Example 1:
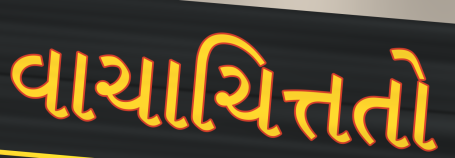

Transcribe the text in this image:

વાચાચિત્તતો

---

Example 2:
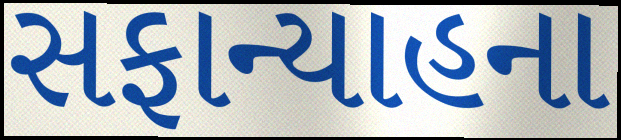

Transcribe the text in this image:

સફાન્યાહના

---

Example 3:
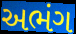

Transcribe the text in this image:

અભંગ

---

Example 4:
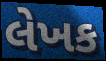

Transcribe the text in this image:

લેખક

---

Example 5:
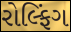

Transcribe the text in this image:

રોલ્ફિંગ